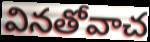
వినతోవాచ